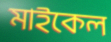
মাইকেল